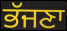
ਭੱਜਣਾ